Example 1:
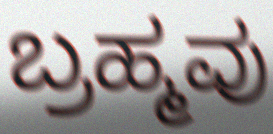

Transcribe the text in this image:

ಬ್ರಹ್ಮವು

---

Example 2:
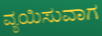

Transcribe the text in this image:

ವ್ಯಯಿಸುವಾಗ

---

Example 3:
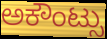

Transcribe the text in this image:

ಅಕೌಂಟ್ಸು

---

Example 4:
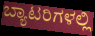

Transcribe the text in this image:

ಬ್ಯಾಟರಿಗಳಲ್ಲಿ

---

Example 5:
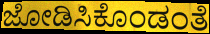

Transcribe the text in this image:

ಜೋಡಿಸಿಕೊಂಡಂತೆ